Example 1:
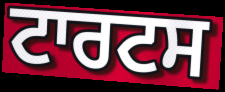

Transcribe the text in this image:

ਟਾਰਟਸ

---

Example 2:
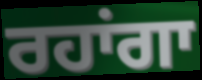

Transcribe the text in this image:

ਰਹਾਂਗਾ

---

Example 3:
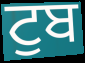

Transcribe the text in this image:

ਟੁਬ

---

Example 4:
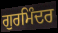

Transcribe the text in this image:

ਗੁਰਮਿੰਦਰ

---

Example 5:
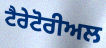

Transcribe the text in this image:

ਟੈਰੇਟੋਰੀਅਲ